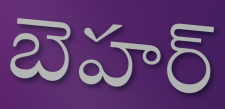
బెహర్